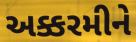
અક્કરમીને